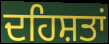
ਦਹਿਸ਼ਤਾਂ